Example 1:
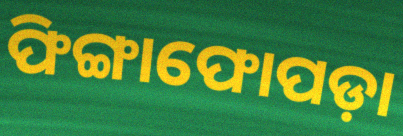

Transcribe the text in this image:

ଫିଙ୍ଗାଫୋପଡ଼ା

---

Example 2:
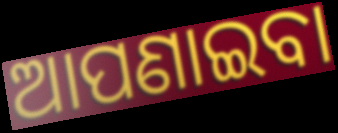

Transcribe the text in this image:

ଆପଣାଇବା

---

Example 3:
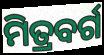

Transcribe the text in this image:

ମିତ୍ରବର୍ଗ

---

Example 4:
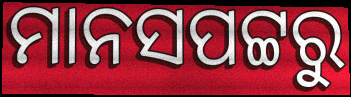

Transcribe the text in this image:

ମାନସପଟ୍ଟରୁ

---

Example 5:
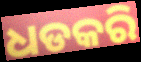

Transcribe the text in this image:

ଧଡକରି